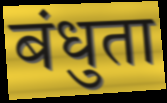
बंधुता